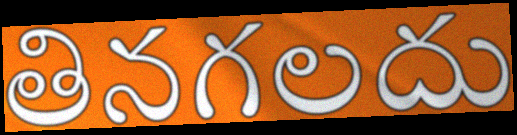
తినగలదు